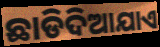
ଛାଡିଦିଆଯାଏ